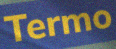
Termo